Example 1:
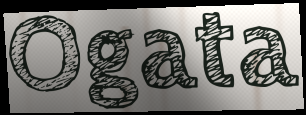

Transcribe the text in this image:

Ogata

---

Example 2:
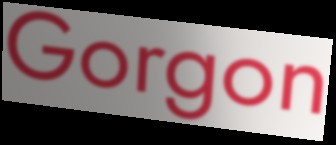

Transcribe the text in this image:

Gorgon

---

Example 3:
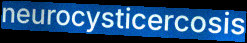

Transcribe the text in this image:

neurocysticercosis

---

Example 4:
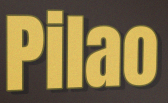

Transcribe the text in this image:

Pilao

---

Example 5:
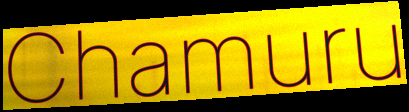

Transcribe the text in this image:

Chamuru